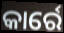
କାର୍ରେ